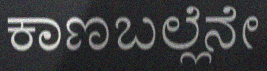
ಕಾಣಬಲ್ಲೆನೇ